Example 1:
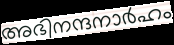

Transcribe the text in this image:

അഭിനന്ദനാർഹം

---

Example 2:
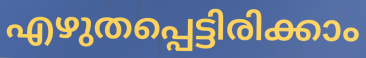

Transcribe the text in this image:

എഴുതപ്പെട്ടിരിക്കാം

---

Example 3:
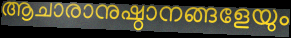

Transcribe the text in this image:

ആചാരാനുഷ്ഠാനങ്ങളേയും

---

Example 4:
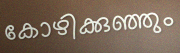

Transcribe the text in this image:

കോഴിക്കുഞ്ഞും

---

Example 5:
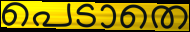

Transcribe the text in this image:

പെടാതെ